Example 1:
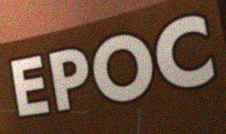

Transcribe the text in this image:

EPOC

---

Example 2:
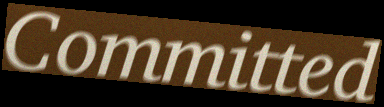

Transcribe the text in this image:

Committed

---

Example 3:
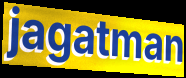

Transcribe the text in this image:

jagatman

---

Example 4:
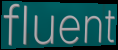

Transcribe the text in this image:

fluent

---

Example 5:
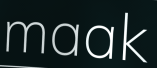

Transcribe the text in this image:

maak